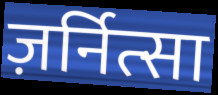
ज़र्नित्सा